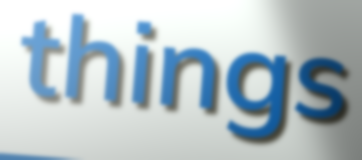
things